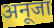
अनूजा